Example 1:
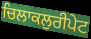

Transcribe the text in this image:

ਚਿਲਾਕਲੁਰੀਪੇਟ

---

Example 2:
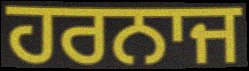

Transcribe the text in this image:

ਹਰਨਾਜ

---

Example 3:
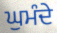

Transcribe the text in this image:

ਘੁਮੰਦੇ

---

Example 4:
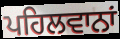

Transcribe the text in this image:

ਪਹਿਲਵਾਨਾਂ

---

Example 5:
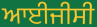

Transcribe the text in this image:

ਆਈਜੀਸੀ